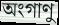
অংগাণু